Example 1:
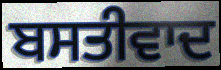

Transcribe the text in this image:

ਬਸਤੀਵਾਦ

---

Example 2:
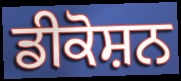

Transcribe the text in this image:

ਡੀਕੋਸ਼ਨ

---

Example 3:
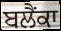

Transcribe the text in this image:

ਬਲੈਂਕਾ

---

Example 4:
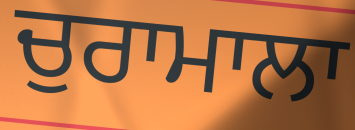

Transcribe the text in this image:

ਚੁਰਾਮਾਲਾ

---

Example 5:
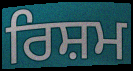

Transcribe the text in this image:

ਰਿਸ਼ਮ